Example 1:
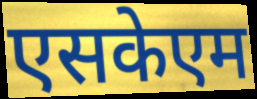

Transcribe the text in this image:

एसकेएम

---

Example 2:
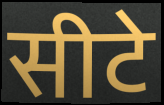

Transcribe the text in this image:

सीटे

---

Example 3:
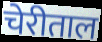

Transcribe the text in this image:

चेरीताल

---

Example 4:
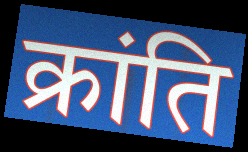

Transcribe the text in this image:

क्रांति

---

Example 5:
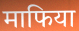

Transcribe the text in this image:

माफिया